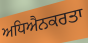
ਅਧਿਐਨਕਰਤਾ